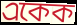
একেক